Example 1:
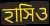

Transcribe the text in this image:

হাসিও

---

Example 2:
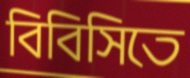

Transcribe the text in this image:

বিবিসিতে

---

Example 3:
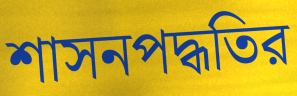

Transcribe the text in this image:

শাসনপদ্ধতির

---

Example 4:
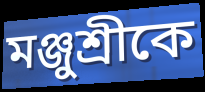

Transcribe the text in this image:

মঞ্জুশ্রীকে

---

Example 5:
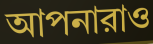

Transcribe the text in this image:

আপনারাও